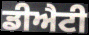
ਡੀਐਟੀ